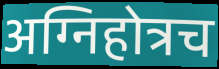
अग्निहोत्रच